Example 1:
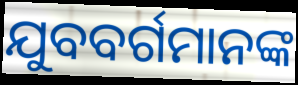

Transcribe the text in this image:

ଯୁବବର୍ଗମାନଙ୍କ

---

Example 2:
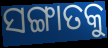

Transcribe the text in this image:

ସଙ୍ଗାତକୁ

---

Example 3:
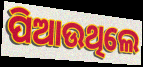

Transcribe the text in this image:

ପିଆଉଥିଲେ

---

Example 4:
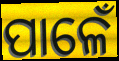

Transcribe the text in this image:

ପାଳେଁ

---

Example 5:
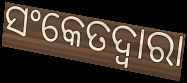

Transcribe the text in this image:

ସଂକେତଦ୍ୱାରା